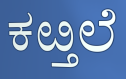
ಕೞ್ತಲೆ